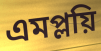
এমপ্লয়ি